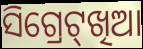
ସିଗ୍ରେଟ୍‌ଖିଆ